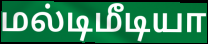
மல்டிமீடியா